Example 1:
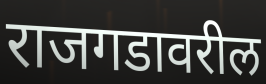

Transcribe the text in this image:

राजगडावरील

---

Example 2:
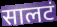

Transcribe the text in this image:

सालटं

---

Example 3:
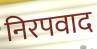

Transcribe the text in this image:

निरपवाद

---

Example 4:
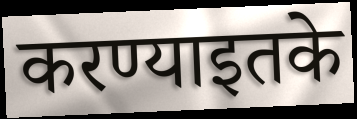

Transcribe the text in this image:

करण्याइतके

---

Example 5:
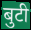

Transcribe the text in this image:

बुटी